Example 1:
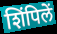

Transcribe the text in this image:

शिंपिलें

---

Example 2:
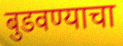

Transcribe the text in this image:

बुडवण्याचा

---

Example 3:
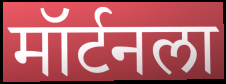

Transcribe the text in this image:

मॉर्टनला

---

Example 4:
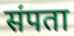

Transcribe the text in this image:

संपता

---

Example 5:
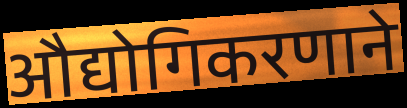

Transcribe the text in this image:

औद्योगिकरणाने